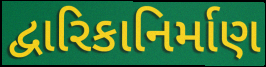
દ્વારિકાનિર્માણ